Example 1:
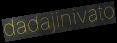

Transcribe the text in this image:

dadajinivato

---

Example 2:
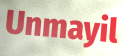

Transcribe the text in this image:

Unmayil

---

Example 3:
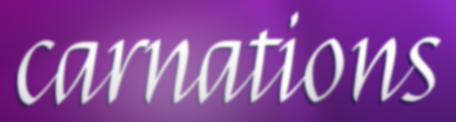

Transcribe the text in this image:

carnations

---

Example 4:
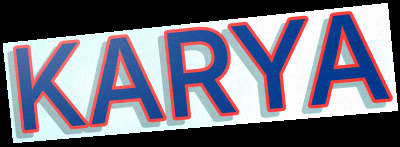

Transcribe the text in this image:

KARYA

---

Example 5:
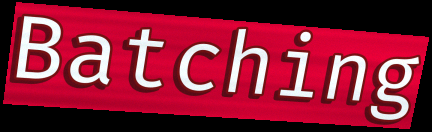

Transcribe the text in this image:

Batching